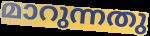
മാറുന്നതു